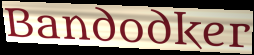
Bandodker